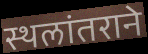
स्थलांतराने